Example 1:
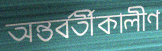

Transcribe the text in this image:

অন্তর্বর্তীকালীণ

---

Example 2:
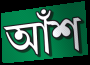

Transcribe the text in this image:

আঁশ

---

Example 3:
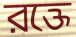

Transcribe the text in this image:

রক্তে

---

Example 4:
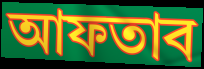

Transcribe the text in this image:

আফতাব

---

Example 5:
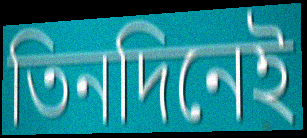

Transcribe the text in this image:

তিনদিনেই